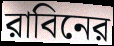
রাবিনের